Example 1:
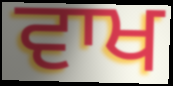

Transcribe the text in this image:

ਵਾਖ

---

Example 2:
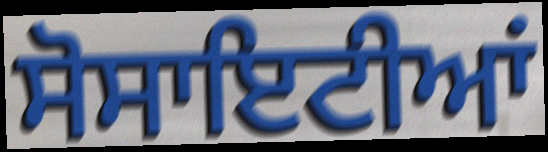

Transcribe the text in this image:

ਸੋਸਾਇਟੀਆਂ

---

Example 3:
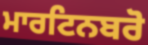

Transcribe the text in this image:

ਮਾਰਟਿਨਬਰੋ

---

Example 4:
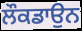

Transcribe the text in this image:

ਲੌਕਡਾਉਨ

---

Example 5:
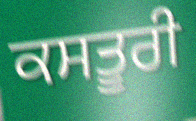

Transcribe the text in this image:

ਕਸਤੂਰੀ